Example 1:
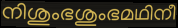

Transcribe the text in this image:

നിശുംഭശുംഭമഥിനീ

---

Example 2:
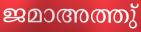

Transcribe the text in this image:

ജമാഅത്തു്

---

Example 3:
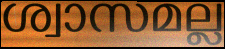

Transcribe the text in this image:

ശ്വാസമല്ല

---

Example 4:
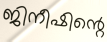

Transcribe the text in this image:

ജിനീഷിന്റെ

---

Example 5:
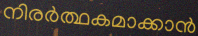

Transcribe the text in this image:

നിരർത്ഥകമാക്കാൻ